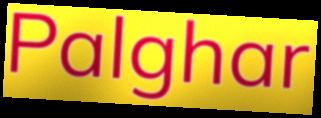
Palghar